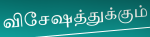
விசேஷத்துக்கும்